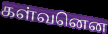
கள்வனென